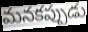
మనకప్పుడు